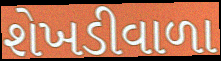
શેખડીવાળા